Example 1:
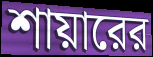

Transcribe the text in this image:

শায়ারের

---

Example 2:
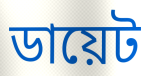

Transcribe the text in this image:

ডায়েট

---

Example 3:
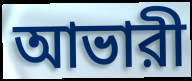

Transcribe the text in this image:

আভারী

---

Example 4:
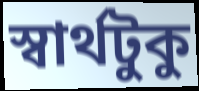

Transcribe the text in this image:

স্বার্থটুকু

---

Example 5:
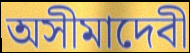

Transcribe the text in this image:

অসীমাদেবী